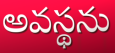
అవస్థను